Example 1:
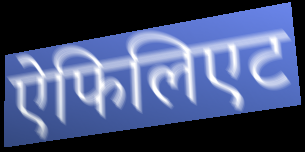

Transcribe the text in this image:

ऐफिलिएट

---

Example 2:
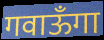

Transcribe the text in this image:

गवाऊँगा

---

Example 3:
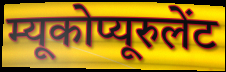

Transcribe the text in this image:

म्यूकोप्यूरुलेंट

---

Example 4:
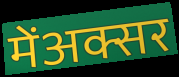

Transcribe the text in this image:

मेंअक्सर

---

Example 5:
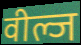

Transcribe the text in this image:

वील्ज